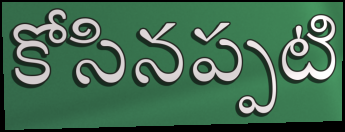
కోసినప్పటి